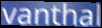
vanthal